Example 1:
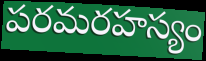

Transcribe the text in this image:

పరమరహస్యం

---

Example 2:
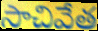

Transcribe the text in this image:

సాచివేత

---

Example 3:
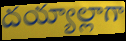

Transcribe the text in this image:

దయ్యాల్లాగా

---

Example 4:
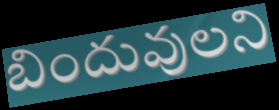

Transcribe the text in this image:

బిందువులని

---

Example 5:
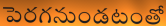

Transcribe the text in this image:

పెరగనుండటంతో